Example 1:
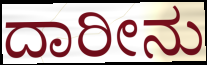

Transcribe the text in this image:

ದಾರೀನು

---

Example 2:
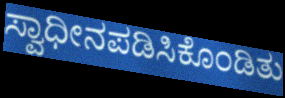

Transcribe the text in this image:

ಸ್ವಾಧೀನಪಡಿಸಿಕೊಂಡಿತು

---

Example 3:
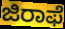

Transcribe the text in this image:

ಜಿರಾಫೆ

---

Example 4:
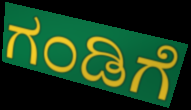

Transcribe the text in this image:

ಗಂಡಿಗೆ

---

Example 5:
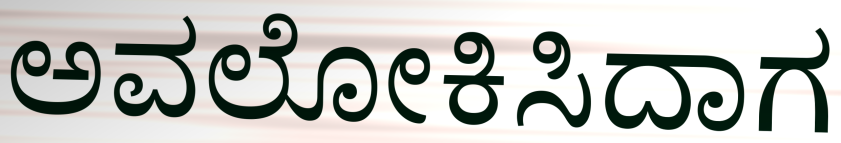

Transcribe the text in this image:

ಅವಲೋಕಿಸಿದಾಗ